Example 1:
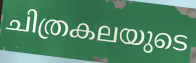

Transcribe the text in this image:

ചിത്രകലയുടെ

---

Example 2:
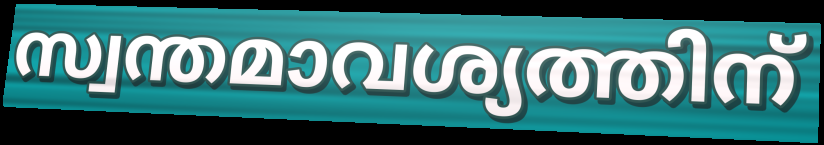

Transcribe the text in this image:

സ്വന്തമാവശ്യത്തിന്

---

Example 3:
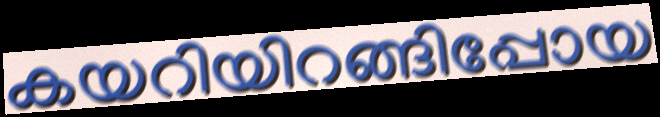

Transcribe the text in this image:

കയറിയിറങ്ങിപ്പോയ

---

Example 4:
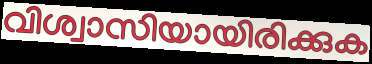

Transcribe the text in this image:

വിശ്വാസിയായിരിക്കുക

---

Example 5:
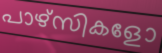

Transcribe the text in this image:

പാഴ്സികളോ